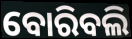
ବୋରିବଲି